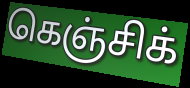
கெஞ்சிக்